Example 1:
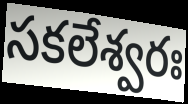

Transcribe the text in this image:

సకలేశ్వరః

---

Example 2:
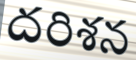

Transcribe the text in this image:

దరిశన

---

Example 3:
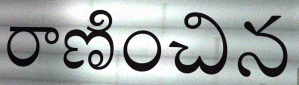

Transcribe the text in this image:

రాణించిన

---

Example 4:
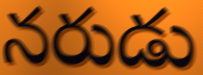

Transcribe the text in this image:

నరుడు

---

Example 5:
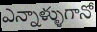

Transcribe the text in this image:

ఎన్నాళ్ళుగానో